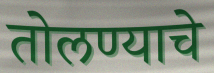
तोलण्याचे